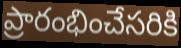
ప్రారంభించేసరికి